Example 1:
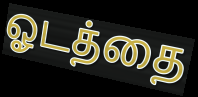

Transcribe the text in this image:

ஓடத்தை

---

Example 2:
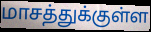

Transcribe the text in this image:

மாசத்துக்குள்ள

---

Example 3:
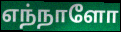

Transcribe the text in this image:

எந்நாளோ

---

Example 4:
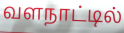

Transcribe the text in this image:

வளநாட்டில்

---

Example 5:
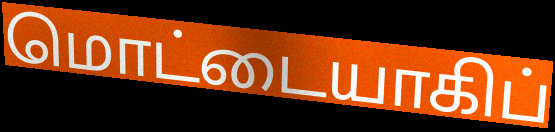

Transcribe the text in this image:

மொட்டையாகிப்